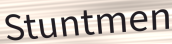
Stuntmen